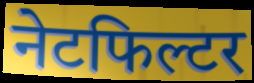
नेटफिल्टर